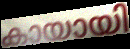
കായായി